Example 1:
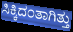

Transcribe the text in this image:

ಸಿಕ್ಕಿದಂತಾಗಿತ್ತು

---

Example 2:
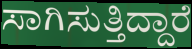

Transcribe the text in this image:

ಸಾಗಿಸುತ್ತಿದ್ದಾರೆ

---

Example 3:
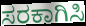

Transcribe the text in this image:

ಸರಕಾಗಿಸಿ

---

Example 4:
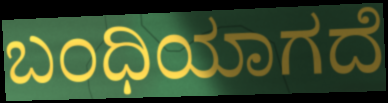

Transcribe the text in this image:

ಬಂಧಿಯಾಗದೆ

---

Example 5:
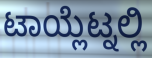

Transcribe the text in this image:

ಟಾಯ್ಲೆಟ್ನಲ್ಲಿ